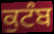
ਕੁਟੰਬ